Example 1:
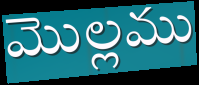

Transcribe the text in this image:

మొల్లము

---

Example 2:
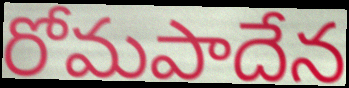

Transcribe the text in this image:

రోమపాదేన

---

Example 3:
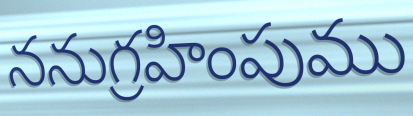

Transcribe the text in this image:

ననుగ్రహింపుము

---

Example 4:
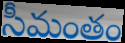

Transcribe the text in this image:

సీమంతం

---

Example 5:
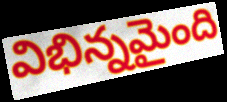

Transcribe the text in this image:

విభిన్నమైంది